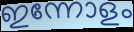
ഇന്നോളം